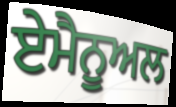
ਏਮੈਨੂਅਲ